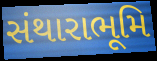
સંથારાભૂમિ